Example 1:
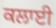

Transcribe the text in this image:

ਕਲਾਈ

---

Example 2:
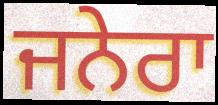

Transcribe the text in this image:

ਜਨੇਰਾ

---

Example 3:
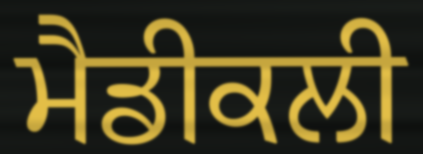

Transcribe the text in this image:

ਮੈਡੀਕਲੀ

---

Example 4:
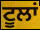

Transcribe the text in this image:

ਟੂਲਾਂ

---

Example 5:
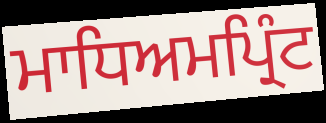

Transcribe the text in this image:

ਮਾਧਿਅਮਪ੍ਰਿੰਟ